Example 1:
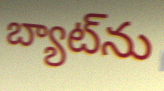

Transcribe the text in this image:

బ్యాట్‌ను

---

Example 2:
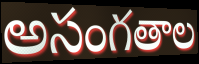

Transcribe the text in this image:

అసంగతాల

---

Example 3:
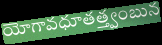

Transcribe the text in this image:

యోగావధూతత్త్వంబున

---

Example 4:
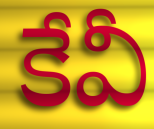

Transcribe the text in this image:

కేవీ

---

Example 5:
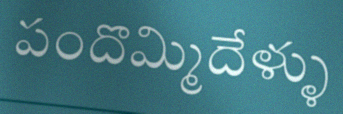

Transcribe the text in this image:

పందొమ్మిదేళ్ళు